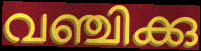
വഞ്ചിക്കു